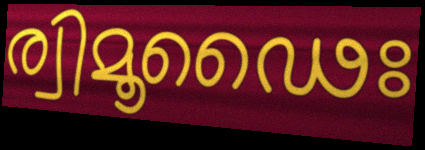
ര്വിമൂഢൈഃ